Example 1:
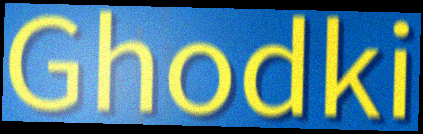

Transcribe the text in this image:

Ghodki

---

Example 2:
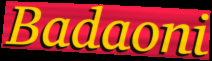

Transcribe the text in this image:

Badaoni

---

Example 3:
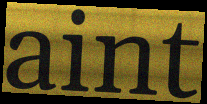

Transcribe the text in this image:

aint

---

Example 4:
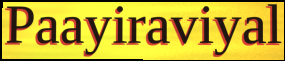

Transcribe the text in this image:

Paayiraviyal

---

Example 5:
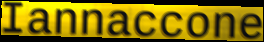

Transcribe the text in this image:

Iannaccone